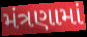
મંત્રણામાં